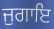
ਜੁਗਾਇ